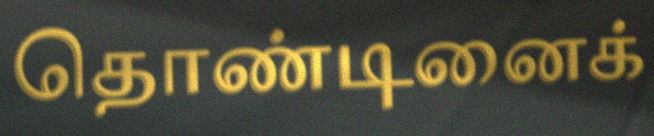
தொண்டினைக்